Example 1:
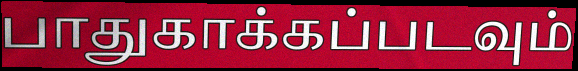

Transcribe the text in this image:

பாதுகாக்கப்படவும்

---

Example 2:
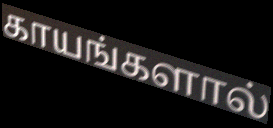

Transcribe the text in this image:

காயங்களால்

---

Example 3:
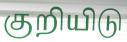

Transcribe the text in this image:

குறியிடு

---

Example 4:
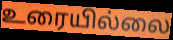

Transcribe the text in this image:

உரையில்லை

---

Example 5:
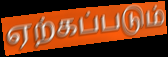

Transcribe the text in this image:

ஏற்கப்படும்